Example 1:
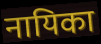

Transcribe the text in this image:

नायिका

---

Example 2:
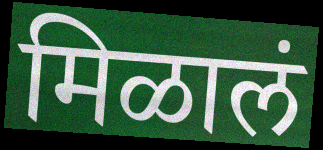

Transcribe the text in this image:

मिळालं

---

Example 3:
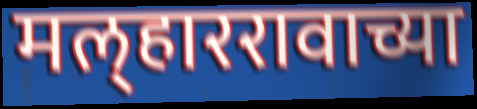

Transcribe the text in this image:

मल्हाररावाच्या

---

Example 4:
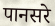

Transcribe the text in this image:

पानसरे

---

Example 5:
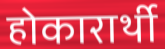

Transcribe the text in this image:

होकारार्थी